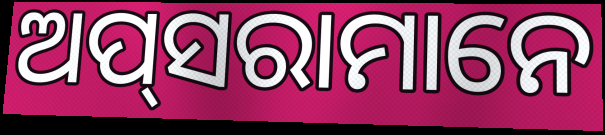
ଅପ୍‌ସରାମାନେ